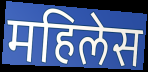
महिलेस